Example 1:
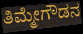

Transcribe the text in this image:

ತಿಮ್ಮೇಗೌಡನ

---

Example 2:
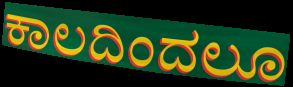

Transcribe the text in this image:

ಕಾಲದಿಂದಲೂ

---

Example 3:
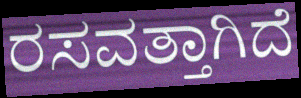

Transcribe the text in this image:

ರಸವತ್ತಾಗಿದೆ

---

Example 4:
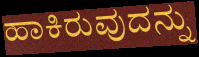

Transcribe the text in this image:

ಹಾಕಿರುವುದನ್ನು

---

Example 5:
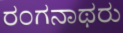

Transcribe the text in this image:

ರಂಗನಾಥರು